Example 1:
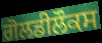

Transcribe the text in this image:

ਗੋਲਡੀਲੌਕਸ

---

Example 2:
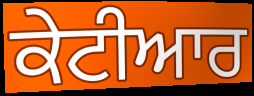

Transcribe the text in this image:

ਕੇਟੀਆਰ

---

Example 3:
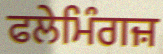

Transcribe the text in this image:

ਫਲੇਮਿੰਗਜ਼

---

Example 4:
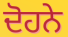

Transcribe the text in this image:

ਦੋਹਨੇ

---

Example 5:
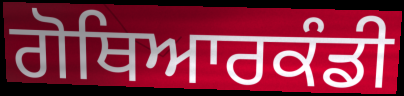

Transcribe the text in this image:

ਗੋਥਿਆਰਕੰਡੀ